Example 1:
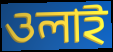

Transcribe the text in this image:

ওলাই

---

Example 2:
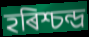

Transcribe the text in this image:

হৰিশ্চন্দ্ৰ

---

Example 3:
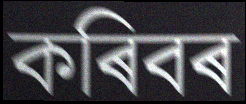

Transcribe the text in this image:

কৰিবৰ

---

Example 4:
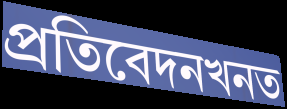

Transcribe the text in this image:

প্ৰতিবেদনখনত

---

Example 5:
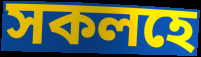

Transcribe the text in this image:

সকলহে